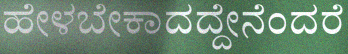
ಹೇಳಬೇಕಾದದ್ದೇನೆಂದರೆ